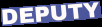
DEPUTY